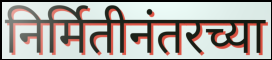
निर्मितीनंतरच्या